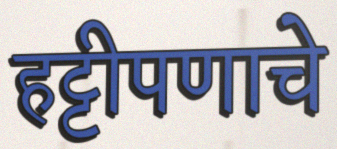
हट्टीपणाचे